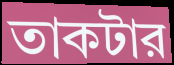
তাকটার